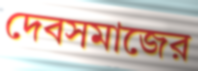
দেবসমাজের